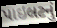
પાઇલટનું